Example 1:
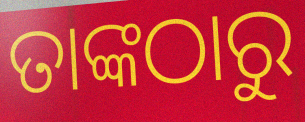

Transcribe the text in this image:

ତାଙ୍କଠାରୁ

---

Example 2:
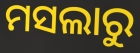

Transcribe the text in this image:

ମସଲାରୁ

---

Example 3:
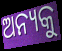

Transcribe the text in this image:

ଅନ୍ୟକୁ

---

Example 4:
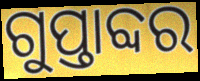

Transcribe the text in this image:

ଗୁପ୍ତାବ୍ଦର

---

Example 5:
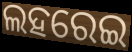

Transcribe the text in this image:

ଲହରେଇ